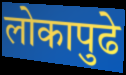
लोकापुढे